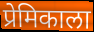
प्रेमिकाला